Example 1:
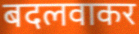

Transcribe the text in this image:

बदलवाकर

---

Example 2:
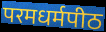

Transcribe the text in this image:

परमधर्मपीठ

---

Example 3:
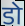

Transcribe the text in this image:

डो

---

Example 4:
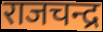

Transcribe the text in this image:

राजचन्द्र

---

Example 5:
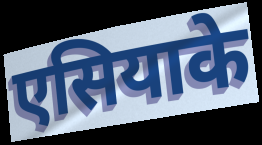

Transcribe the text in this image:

एसियाके